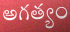
అగత్యం